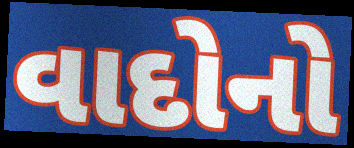
વાદોનો